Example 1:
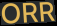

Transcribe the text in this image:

ORR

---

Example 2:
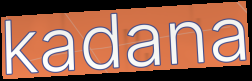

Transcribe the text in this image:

kadana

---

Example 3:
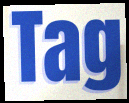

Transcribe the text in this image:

Tag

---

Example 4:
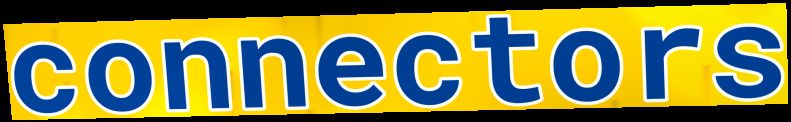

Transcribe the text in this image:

connectors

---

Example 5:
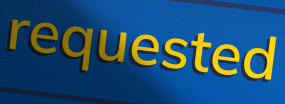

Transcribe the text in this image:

requested